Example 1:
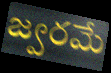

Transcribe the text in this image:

జ్వరమే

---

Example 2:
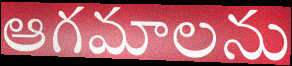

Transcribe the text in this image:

ఆగమాలను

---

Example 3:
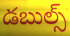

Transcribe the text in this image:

డబుల్స్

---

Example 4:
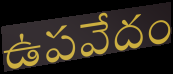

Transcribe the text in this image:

ఉపవేదం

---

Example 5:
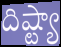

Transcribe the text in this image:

దిష్ట్యా